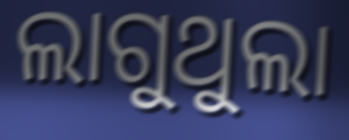
ଲାଗୁଥୁଲା